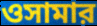
ওসামার